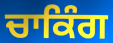
ਚਾਕਿੰਗ